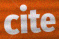
cite